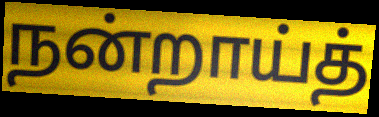
நன்றாய்த்